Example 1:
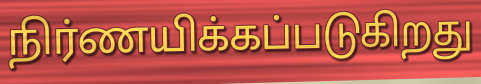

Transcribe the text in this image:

நிர்ணயிக்கப்படுகிறது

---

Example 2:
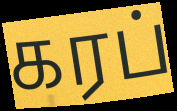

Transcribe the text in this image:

கரப்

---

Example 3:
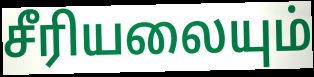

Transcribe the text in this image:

சீரியலையும்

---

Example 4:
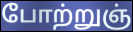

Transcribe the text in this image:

போற்றுஞ்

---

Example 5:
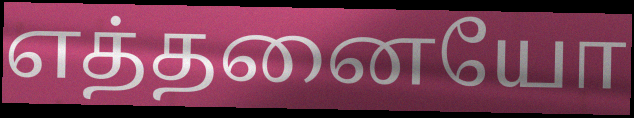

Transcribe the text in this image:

எத்தனையோ